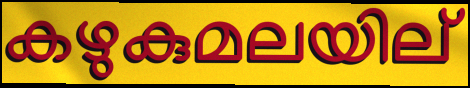
കഴുകുമലയില്